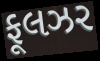
ફૂલઝર